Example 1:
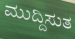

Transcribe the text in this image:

ಮುದ್ದಿಸುತ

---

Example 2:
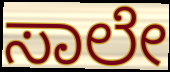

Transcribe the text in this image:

ಸಾಲೇ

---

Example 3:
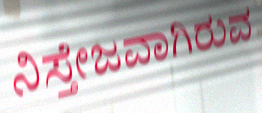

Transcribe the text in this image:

ನಿಸ್ತೇಜವಾಗಿರುವ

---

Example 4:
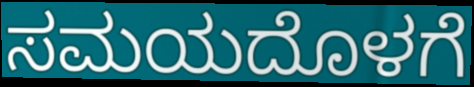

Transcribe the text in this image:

ಸಮಯದೊಳಗೆ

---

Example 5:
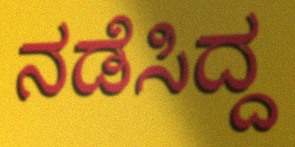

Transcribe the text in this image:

ನಡೆಸಿದ್ದ